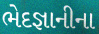
ભેદજ્ઞાનીના